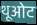
थूओट